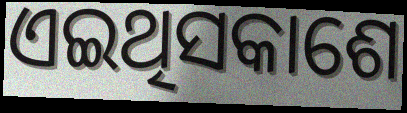
ଏଇଥିସକାଶେ